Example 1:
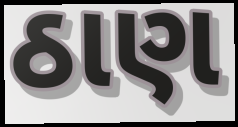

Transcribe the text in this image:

ઠાણ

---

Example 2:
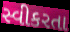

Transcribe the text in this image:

સ્વીકરતા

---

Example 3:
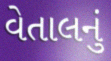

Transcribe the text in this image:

વેતાલનું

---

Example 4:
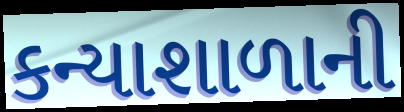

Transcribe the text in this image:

કન્યાશાળાની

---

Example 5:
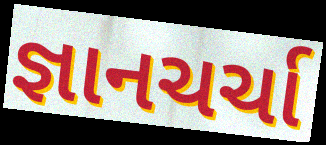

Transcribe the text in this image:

જ્ઞાનચર્ચા